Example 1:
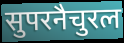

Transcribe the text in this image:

सुपरनैचुरल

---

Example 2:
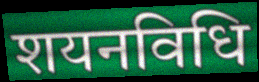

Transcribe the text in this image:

शयनविधि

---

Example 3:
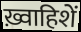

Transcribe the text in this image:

ख़्वाहिशें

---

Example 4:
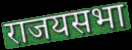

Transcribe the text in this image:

राजयसभा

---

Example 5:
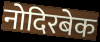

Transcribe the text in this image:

नोदिरबेक